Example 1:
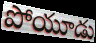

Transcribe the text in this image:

పోయూడు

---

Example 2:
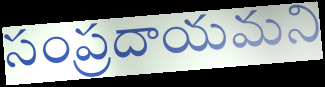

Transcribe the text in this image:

సంప్రదాయమని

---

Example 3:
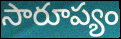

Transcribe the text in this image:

సారూప్యం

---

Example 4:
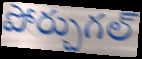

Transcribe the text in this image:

పోర్చుగల్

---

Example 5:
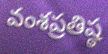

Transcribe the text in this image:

వంశప్రతిష్ఠ